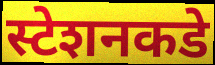
स्टेशनकडे